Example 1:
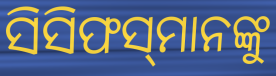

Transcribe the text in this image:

ସିସିଫସ୍‌ମାନଙ୍କୁ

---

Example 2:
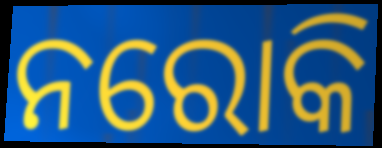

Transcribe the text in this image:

ନରୋକି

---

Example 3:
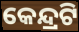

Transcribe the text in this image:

କେନ୍ଦ୍ରଟି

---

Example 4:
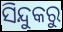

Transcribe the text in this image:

ସିନ୍ଦୁକରୁ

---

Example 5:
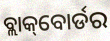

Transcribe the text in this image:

ବ୍ଲାକ୍‌ବୋର୍ଡର